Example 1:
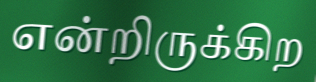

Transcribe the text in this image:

என்றிருக்கிற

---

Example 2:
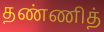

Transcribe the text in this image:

தண்ணித்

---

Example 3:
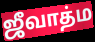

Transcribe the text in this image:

ஜீவாத்ம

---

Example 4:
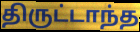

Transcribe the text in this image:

திருட்டாந்த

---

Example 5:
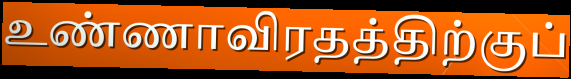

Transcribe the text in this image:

உண்ணாவிரதத்திற்குப்